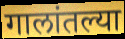
गालांतल्या